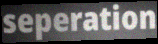
seperation